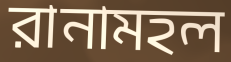
রানামহল